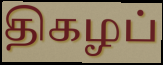
திகழப்